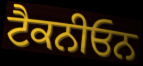
ਟੈਕਨੀਓਨ